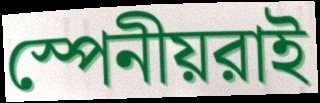
স্পেনীয়রাই